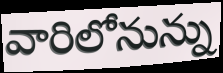
వారిలోనున్ను